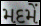
મદમેં